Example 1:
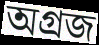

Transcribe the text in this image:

অগ্ৰজ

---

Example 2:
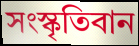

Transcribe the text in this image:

সংস্কৃতিবান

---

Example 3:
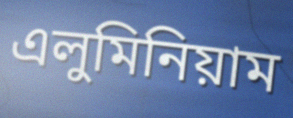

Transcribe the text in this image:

এলুমিনিয়াম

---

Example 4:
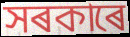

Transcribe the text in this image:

সৰকাৰে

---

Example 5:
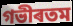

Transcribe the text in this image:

গভীৰতম